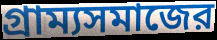
গ্রাম্যসমাজের